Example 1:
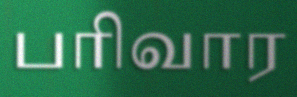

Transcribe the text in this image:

பரிவார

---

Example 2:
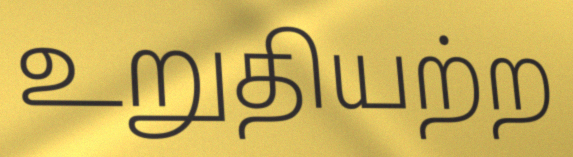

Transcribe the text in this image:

உறுதியற்ற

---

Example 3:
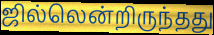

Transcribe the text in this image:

ஜில்லென்றிருந்தது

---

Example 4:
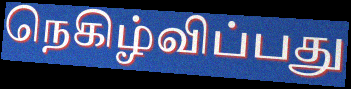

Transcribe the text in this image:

நெகிழ்விப்பது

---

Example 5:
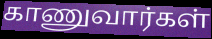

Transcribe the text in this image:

காணுவார்கள்